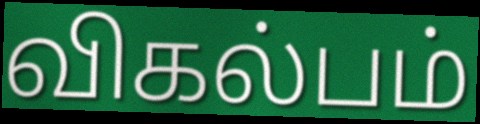
விகல்பம்